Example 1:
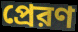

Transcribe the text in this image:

প্রেরণ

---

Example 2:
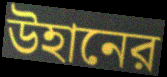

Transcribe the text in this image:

উহানের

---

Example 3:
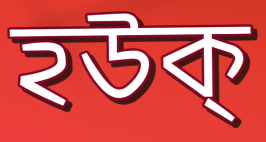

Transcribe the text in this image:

হউক্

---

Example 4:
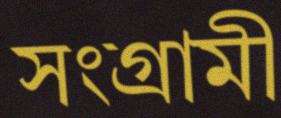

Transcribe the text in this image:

সংগ্রামী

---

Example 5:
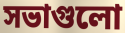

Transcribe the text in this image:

সভাগুলো